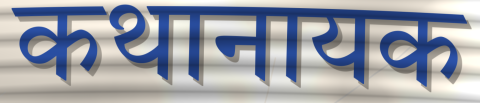
कथानायक